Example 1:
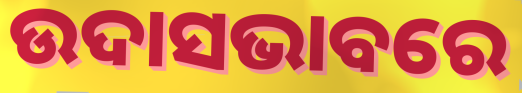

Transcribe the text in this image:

ଉଦାସଭାବରେ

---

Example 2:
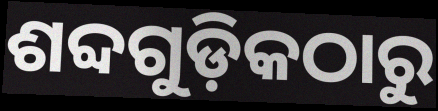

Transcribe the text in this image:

ଶବ୍ଦଗୁଡ଼ିକଠାରୁ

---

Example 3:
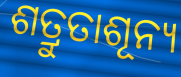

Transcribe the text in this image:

ଶତ୍ରୁତାଶୂନ୍ୟ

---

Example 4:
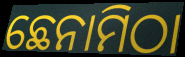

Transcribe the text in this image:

ଛେନାମିଠା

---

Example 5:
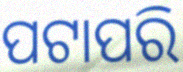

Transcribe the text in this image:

ପଟାପରି